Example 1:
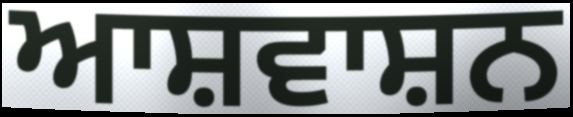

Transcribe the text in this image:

ਆਸ਼ਵਾਸ਼ਨ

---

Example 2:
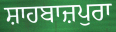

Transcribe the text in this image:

ਸ਼ਾਹਬਾਜ਼ਪੁਰਾ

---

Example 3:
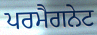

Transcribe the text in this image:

ਪਰਮੈਗਨੇਟ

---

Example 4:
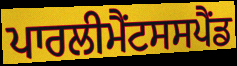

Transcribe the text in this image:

ਪਾਰਲੀਮੈਂਟਸਸਪੈਂਡ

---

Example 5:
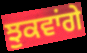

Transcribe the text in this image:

ਝੁਕਵਾਂਗੇ